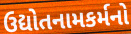
ઉદ્યોતનામકર્મનો